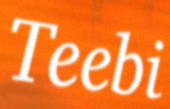
Teebi